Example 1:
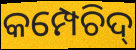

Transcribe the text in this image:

କମ୍ପେଚିଦ୍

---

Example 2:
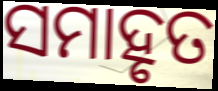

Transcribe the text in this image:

ସମାହୃତ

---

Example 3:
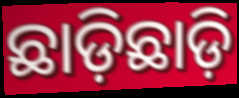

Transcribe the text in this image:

ଛାଡ଼ିଛାଡ଼ି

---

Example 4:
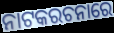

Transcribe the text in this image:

ନାଟକରଚନାରେ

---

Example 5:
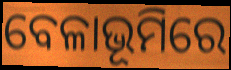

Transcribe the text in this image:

ବେଳାଭୂମିରେ